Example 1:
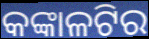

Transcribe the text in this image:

କଙ୍କାଳଟିର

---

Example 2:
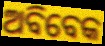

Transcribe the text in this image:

ଅବିବେକ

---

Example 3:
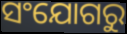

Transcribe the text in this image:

ସଂଯୋଗରୁ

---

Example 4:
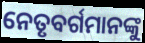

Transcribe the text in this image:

ନେତୃବର୍ଗମାନଙ୍କୁ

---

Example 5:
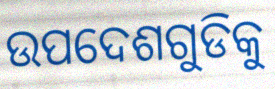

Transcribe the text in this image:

ଉପଦେଶଗୁଡିକୁ